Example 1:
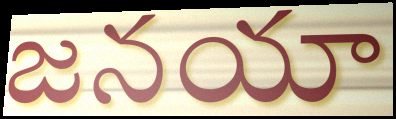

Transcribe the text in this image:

జనయా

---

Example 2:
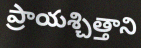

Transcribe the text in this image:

ప్రాయశ్చిత్తాని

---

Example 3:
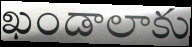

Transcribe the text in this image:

ఖండాలాకు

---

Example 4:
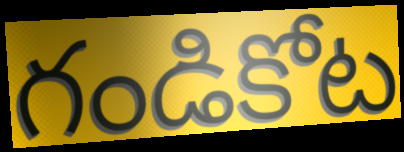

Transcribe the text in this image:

గండికోట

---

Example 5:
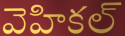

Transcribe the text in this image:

వెహికల్